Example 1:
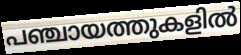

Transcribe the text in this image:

പഞ്ചായത്തുകളിൽ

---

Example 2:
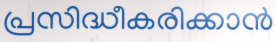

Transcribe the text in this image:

പ്രസിദ്ധീകരിക്കാൻ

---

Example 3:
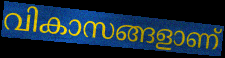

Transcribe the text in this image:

വികാസങ്ങളാണ്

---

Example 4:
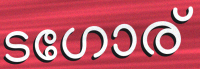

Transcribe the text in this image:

ടഗോര്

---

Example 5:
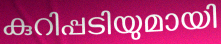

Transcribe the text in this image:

കുറിപ്പടിയുമായി